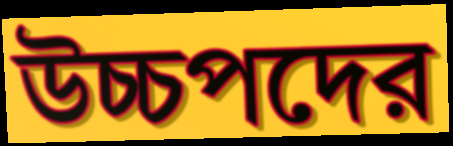
উচ্চপদের